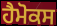
ਹੈਮੋਕਸ